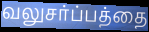
வலுசர்ப்பத்தை